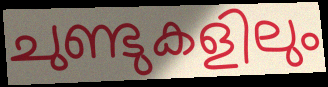
ചുണ്ടുകളിലും